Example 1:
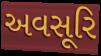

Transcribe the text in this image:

અવસૂરિ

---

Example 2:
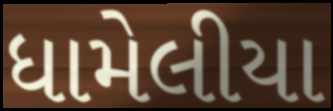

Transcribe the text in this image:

ધામેલીયા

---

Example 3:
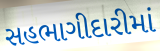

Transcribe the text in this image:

સહભાગીદારીમાં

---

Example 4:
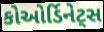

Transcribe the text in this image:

કોઓર્ડિનેટ્સ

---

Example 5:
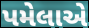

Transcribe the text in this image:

પમેલાએ